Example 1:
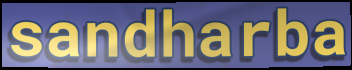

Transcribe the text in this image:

sandharba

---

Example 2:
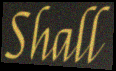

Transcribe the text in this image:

Shall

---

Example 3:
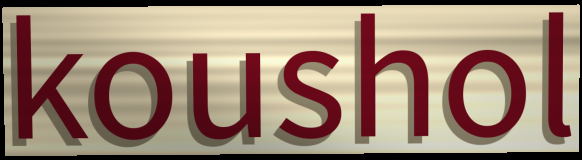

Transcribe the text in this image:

koushol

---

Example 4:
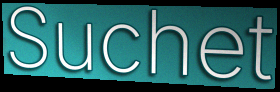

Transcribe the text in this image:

Suchet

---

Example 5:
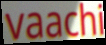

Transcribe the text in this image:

vaachi